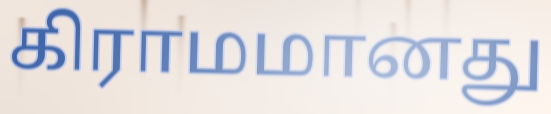
கிராமமானது